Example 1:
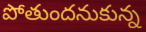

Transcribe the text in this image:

పోతుందనుకున్న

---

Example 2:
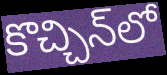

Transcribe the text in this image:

కొచ్చిన్‌లో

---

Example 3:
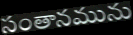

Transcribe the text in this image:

సంతానమును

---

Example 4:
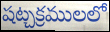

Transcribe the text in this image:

షట్చక్రములలో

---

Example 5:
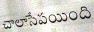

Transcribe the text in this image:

చాలాసేపయింది